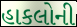
હાકલોની